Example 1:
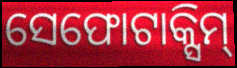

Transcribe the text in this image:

ସେଫୋଟାକ୍ସିମ୍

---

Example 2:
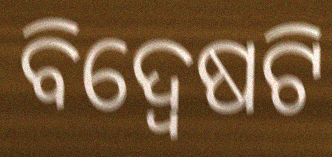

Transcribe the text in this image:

ବିଦ୍ୱେଷଟି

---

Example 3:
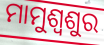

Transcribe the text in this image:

ମାମୁଶ୍ବଶୁର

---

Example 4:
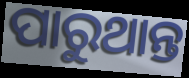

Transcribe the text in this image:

ପାରୁଥାନ୍ତ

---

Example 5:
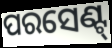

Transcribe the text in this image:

ପରସେଣ୍ଟ୍